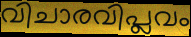
വിചാരവിപ്ലവം